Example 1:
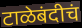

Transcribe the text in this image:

टाळेबंदीचं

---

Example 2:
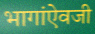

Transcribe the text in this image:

भागांऐवजी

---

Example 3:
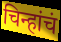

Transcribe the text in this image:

चिन्हांचं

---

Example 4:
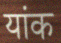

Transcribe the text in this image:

यांक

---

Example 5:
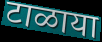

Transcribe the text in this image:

टाळाया